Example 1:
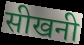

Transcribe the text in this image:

सीखनी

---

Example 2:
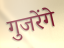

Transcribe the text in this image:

गुजरेंगे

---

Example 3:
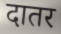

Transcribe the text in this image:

दातर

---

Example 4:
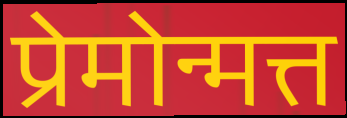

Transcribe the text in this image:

प्रेमोन्मत्त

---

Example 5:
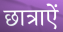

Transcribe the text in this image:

छात्राऐं